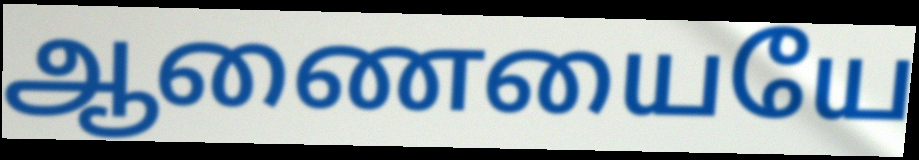
ஆணையையே